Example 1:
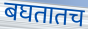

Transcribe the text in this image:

बघतातच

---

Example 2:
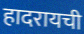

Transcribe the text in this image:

हादरायची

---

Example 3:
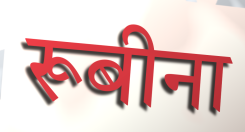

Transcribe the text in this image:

रूबीना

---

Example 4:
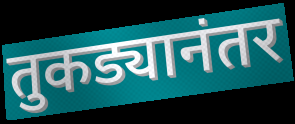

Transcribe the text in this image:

तुकड्यानंतर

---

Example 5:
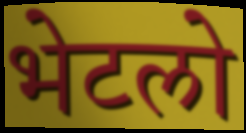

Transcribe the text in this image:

भेटलो